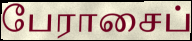
பேராசைப்